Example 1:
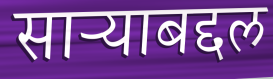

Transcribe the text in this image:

साऱ्याबद्दल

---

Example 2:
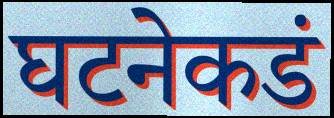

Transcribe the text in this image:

घटनेकडं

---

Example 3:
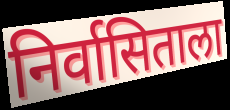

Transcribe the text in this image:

निर्वासिताला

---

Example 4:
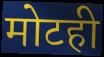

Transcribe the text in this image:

मोटही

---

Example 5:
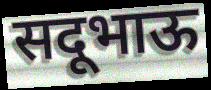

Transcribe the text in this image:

सदूभाऊ